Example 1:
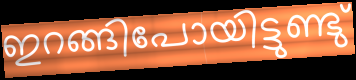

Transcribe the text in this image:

ഇറങ്ങിപോയിട്ടുണ്ടു്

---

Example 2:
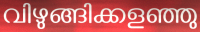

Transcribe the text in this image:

വിഴുങ്ങിക്കളഞ്ഞു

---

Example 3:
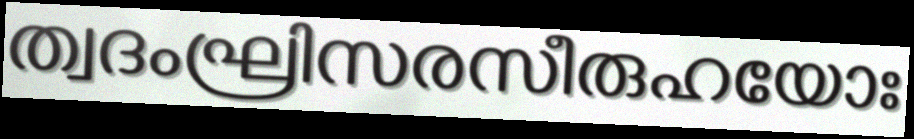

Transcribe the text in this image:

ത്വദംഘ്രിസരസീരുഹയോഃ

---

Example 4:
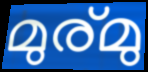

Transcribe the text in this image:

മുര്മു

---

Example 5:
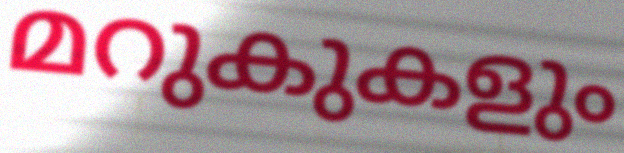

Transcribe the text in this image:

മറുകുകളും